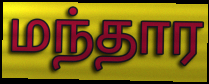
மந்தார